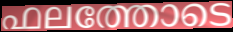
ഫലത്തോടെ